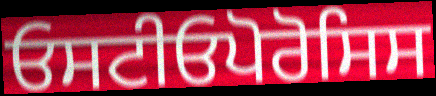
ਓਸਟੀਓਪੋਰੋਸਿਸ